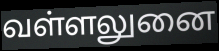
வள்ளலுனை